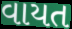
વાયત